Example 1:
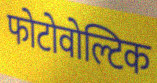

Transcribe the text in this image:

फोटोवोल्टिक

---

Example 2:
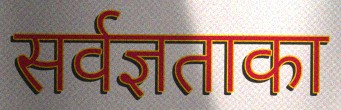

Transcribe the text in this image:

सर्वज्ञताका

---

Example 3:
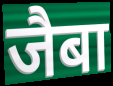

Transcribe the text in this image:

जैबा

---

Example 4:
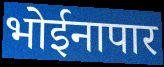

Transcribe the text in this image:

भोईनापार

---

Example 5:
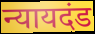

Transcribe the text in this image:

न्यायदंड